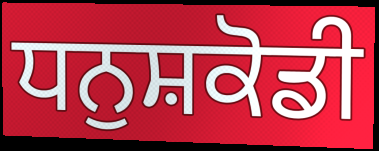
ਧਨੁਸ਼ਕੋਡੀ